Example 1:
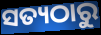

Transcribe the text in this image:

ସତ୍ୟଠାରୁ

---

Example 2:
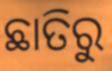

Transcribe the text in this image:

ଛାତିରୁ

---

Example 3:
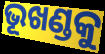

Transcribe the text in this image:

ଭୂଖଣ୍ଡକୁ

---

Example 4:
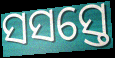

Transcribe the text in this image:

ସସସ୍ତେ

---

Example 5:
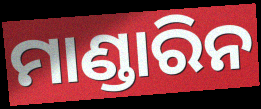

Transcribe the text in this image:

ମାଣ୍ଡାରିନ